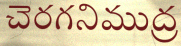
చెరగనిముద్ర